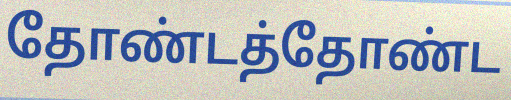
தோண்டத்தோண்ட